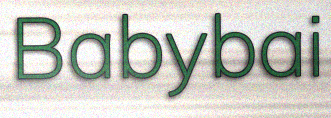
Babybai